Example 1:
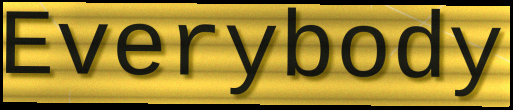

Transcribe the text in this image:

Everybody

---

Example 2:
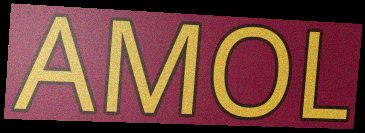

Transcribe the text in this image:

AMOL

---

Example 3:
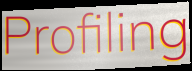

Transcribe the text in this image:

Profiling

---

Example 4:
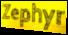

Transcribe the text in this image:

Zephyr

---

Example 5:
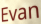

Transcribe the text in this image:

Evan